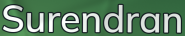
Surendran